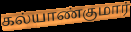
கல்யாண்குமார்